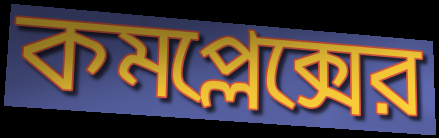
কমপ্লেক্সের